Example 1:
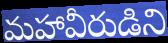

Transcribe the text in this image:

మహావీరుడిని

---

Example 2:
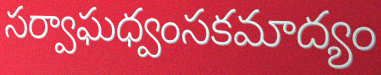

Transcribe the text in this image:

సర్వాఘధ్వంసకమాద్యం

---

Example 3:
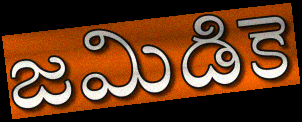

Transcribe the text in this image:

జమిడికె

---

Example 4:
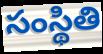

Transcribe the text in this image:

సంస్థితి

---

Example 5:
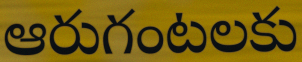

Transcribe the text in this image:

ఆరుగంటలకు